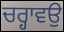
ਚਰ੍ਹਾਵਉ